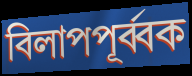
বিলাপপূর্ব্বক